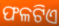
ଫଳଟିଏ